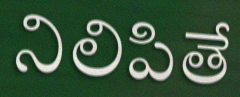
నిలిపితే